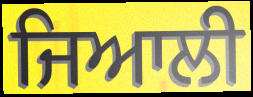
ਜਿਆਲੀ